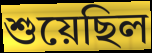
শুয়েছিল